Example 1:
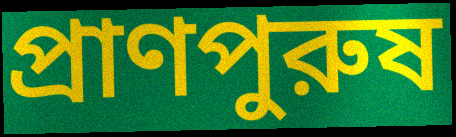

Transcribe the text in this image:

প্রাণপুরুষ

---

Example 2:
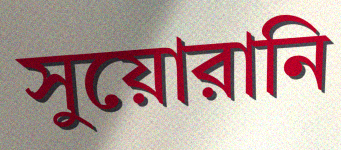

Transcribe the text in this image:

সুয়োরানি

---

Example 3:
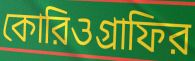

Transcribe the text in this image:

কোরিওগ্রাফির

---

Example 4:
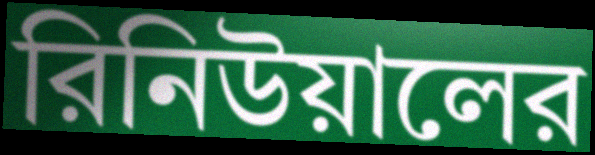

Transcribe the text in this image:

রিনিউয়ালের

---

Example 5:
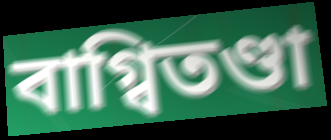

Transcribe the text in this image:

বাগ্বিতণ্ডা